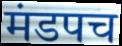
मंडपच